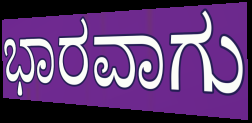
ಭಾರವಾಗು